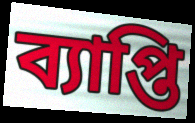
ব্যাপ্তি